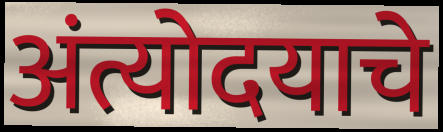
अंत्योदयाचे